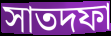
সাতদফা